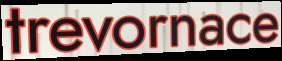
trevornace